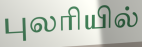
புலரியில்